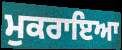
ਮੁਕਰਾਇਆ